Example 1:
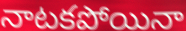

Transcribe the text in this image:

నాటకపోయినా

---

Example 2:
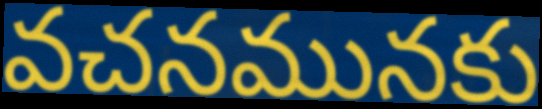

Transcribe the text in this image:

వచనమునకు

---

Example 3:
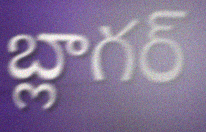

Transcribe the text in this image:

బ్లాగర్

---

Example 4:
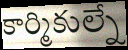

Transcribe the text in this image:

కార్మికుల్నే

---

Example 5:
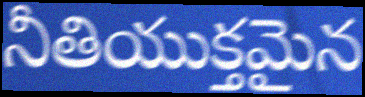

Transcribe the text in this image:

నీతియుక్తమైన